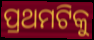
ପ୍ରଥମଟିକୁ